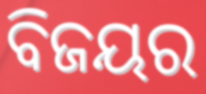
ବିଜୟର